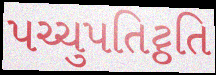
પચ્ચુપતિટ્ઠતિ